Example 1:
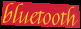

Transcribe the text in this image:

bluetooth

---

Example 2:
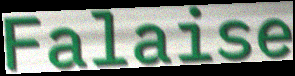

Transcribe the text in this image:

Falaise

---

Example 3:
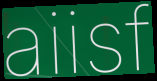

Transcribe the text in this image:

aiisf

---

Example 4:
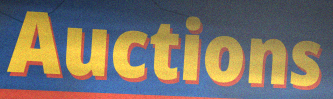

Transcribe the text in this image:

Auctions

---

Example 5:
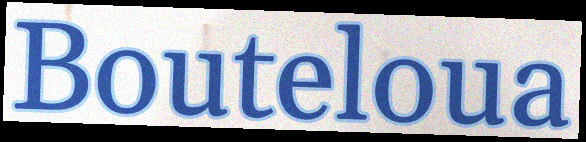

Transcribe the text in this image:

Bouteloua